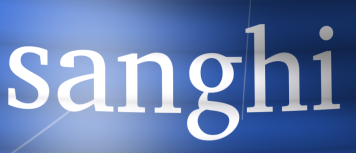
sanghi